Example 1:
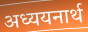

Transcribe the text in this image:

अध्ययनार्थ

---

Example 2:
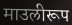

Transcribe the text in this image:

माउलीरूप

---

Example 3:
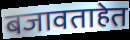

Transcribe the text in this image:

बजावताहेत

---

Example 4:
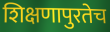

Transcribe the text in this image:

शिक्षणापुरतेच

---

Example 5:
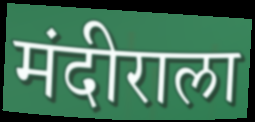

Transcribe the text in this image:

मंदीराला